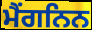
ਮੈਂਗਨਿਨ